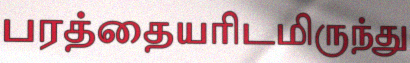
பரத்தையரிடமிருந்து